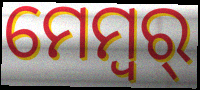
ମେମ୍ବର୍